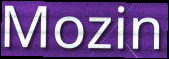
Mozin